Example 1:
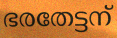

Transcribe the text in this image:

ഭരതേട്ടന്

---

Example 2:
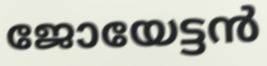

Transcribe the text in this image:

ജോയേട്ടൻ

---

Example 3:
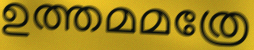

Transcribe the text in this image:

ഉത്തമമത്രേ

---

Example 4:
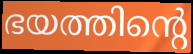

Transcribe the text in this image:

ഭയത്തിന്റെ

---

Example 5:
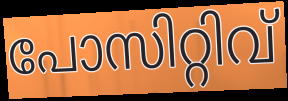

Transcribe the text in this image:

പോസിറ്റിവ്